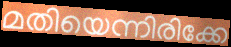
മതിയെന്നിരിക്കേ